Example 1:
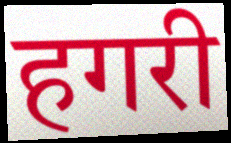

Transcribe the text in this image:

हगरी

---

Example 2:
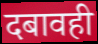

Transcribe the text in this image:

दबावही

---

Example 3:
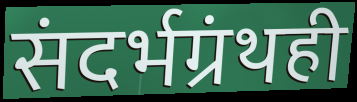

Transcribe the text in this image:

संदर्भग्रंथही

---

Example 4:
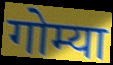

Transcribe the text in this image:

गोम्या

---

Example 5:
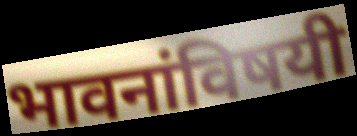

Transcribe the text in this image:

भावनांविषयी